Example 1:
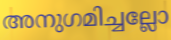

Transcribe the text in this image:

അനുഗമിച്ചല്ലോ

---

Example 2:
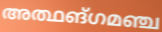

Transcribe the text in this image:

അത്ഥങ്ഗമഞ്ച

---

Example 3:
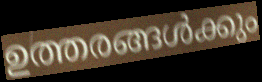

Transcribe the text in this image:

ഉത്തരങ്ങൾക്കും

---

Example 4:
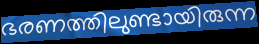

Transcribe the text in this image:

ഭരണത്തിലുണ്ടായിരുന്ന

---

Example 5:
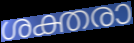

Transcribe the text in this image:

ശക്തരാ